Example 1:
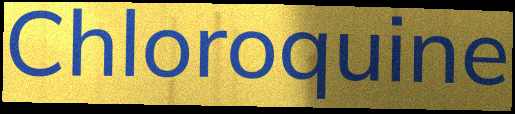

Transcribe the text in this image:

Chloroquine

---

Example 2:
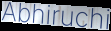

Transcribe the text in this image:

Abhiruchi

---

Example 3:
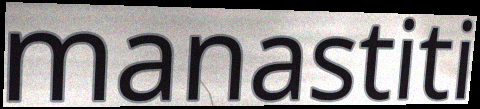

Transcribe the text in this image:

manastiti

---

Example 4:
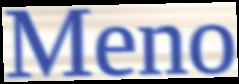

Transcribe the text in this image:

Meno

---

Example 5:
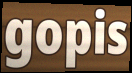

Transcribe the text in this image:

gopis